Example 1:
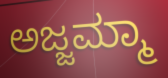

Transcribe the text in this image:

ಅಜ್ಜಮ್ಮಾ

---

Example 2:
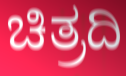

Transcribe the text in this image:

ಚಿತ್ರದಿ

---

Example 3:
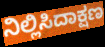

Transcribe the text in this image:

ನಿಲ್ಲಿಸಿದಾಕ್ಷಣ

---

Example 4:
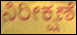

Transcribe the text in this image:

ನಿರೀಕ್ಷಣೆ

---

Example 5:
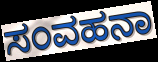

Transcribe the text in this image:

ಸಂವಹನಾ